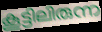
കൂട്ടിലിരുന്ന